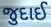
જુદાઈ